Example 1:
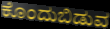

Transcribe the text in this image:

ಕೊಂದುಬಿಡುವ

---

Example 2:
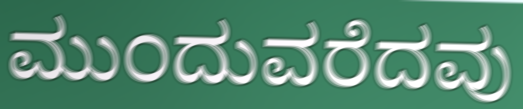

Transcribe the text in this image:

ಮುಂದುವರೆದವು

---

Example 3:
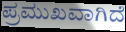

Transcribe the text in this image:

ಪ್ರಮುಖವಾಗಿದೆ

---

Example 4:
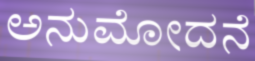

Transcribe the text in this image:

ಅನುಮೋದನೆ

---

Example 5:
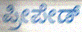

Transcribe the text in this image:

ಪ್ರೀಪೇಡ್